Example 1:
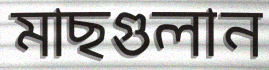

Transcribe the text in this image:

মাছগুলান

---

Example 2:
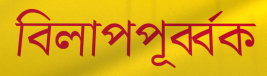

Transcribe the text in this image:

বিলাপপূর্ব্বক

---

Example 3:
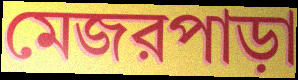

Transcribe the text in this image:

মেজরপাড়া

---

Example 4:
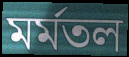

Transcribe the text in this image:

মর্মতল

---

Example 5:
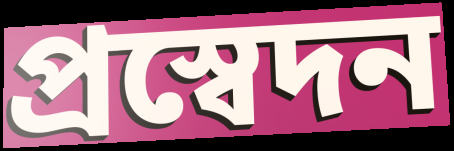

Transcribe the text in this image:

প্রস্বেদন